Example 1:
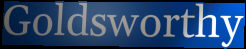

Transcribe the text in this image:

Goldsworthy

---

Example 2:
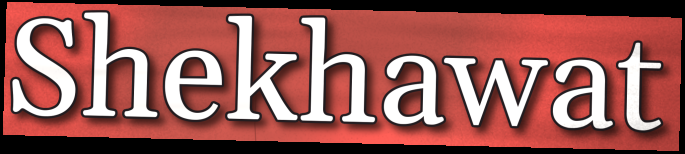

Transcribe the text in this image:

Shekhawat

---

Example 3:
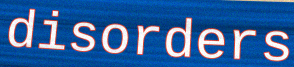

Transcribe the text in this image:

disorders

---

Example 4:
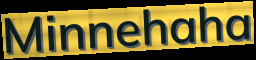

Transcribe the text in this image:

Minnehaha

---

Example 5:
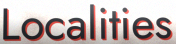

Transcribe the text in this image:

Localities